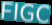
FIGC